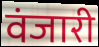
वंजारी